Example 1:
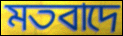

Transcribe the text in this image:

মতবাদে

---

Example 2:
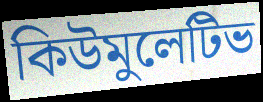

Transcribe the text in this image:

কিউমুলেটিভ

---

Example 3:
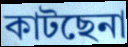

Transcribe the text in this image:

কাটছেনা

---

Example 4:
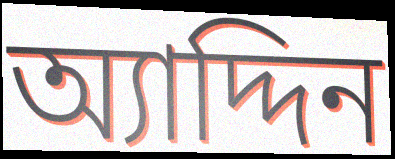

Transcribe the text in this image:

অ্যাদ্দিন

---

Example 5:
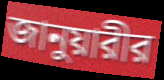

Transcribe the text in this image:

জানুয়ারীর